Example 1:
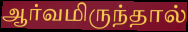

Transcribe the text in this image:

ஆர்வமிருந்தால்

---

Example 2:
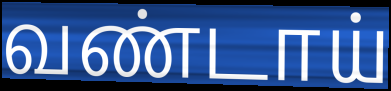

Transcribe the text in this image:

வண்டாய்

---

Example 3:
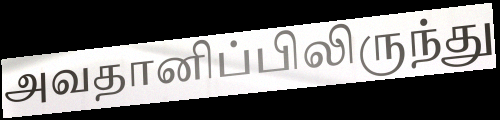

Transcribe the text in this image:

அவதானிப்பிலிருந்து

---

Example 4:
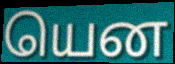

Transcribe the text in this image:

யென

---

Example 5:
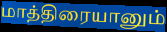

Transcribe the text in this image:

மாத்திரையானும்